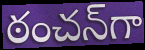
ఠంచన్‌గా